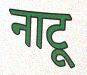
नाटू